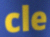
cle